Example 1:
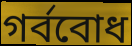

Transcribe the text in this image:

গর্ববোধ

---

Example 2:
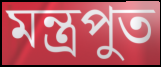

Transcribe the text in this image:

মন্ত্রপুত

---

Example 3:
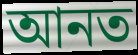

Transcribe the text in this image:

আনত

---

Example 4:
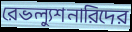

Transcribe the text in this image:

রেভল্যুশনারিদের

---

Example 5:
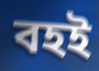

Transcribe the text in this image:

বহই